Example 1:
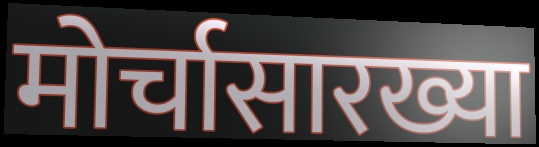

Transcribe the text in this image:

मोर्चासारख्या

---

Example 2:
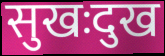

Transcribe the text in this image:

सुखःदुख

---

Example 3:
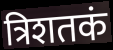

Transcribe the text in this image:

त्रिशतकं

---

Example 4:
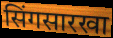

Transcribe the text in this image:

सिंगसारखा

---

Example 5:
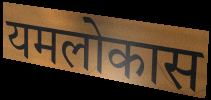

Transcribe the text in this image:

यमलोकास